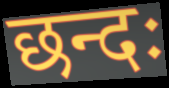
छन्दः